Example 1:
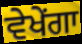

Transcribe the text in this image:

ਵੇਖੇਂਗਾ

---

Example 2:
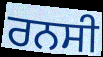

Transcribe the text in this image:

ਰਨਸੀ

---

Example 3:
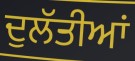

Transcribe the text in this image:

ਦੁਲੱਤੀਆਂ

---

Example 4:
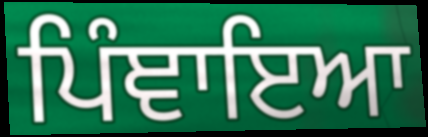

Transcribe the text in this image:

ਪਿੰਞਾਇਆ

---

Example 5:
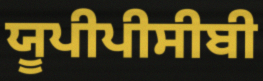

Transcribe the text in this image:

ਯੂਪੀਪੀਸੀਬੀ